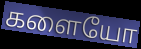
களையோ